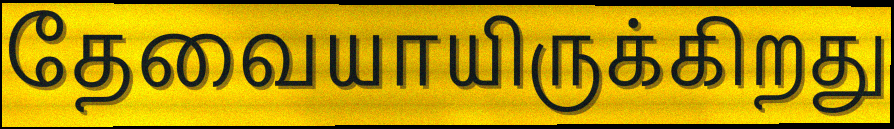
தேவையாயிருக்கிறது